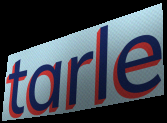
tarle